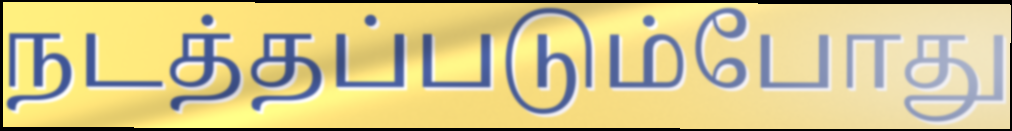
நடத்தப்படும்போது